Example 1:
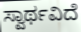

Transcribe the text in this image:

ಸ್ವಾರ್ಥವಿದೆ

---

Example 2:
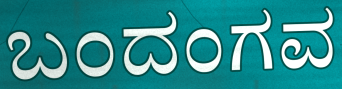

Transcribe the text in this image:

ಬಂದಂಗವ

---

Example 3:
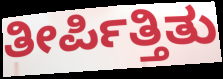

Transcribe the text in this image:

ತೀರ್ಪಿತ್ತಿತು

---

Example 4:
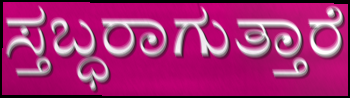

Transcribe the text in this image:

ಸ್ತಬ್ಧರಾಗುತ್ತಾರೆ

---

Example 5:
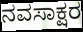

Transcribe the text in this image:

ನವಸಾಕ್ಷರ